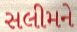
સલીમને